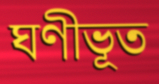
ঘণীভূত